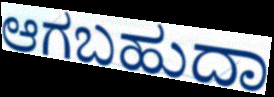
ಆಗಬಹುದಾ